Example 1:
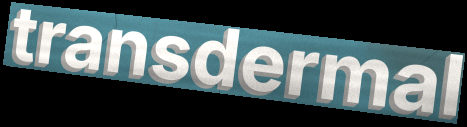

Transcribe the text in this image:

transdermal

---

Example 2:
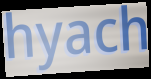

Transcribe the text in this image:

hyach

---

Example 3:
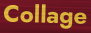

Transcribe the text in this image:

Collage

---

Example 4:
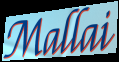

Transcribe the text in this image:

Mallai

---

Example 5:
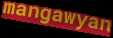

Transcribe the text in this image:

mangawyan